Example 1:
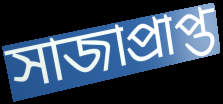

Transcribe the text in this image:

সাজাপ্রাপ্ত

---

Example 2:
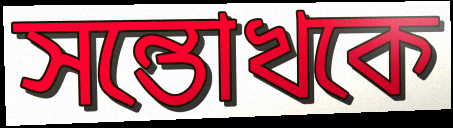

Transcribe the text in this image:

সন্তোখকে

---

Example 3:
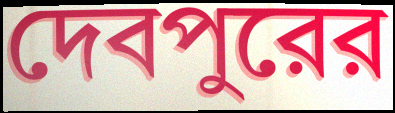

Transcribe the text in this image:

দেবপুরের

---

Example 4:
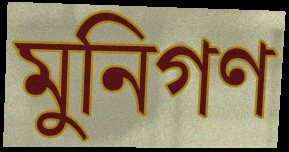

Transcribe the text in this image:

মুনিগণ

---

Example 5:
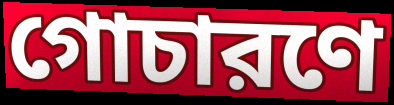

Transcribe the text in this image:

গোচারণে